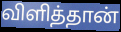
விளித்தான்